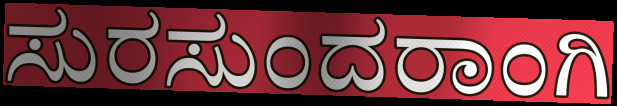
ಸುರಸುಂದರಾಂಗಿ